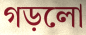
গড়লো